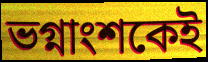
ভগ্নাংশকেই